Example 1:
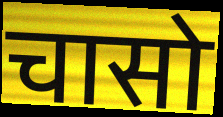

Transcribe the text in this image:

चासो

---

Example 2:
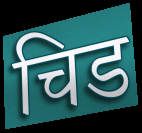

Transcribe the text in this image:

चिड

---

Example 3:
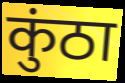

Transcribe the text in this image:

कुंठा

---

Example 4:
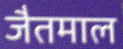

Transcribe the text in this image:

जैतमाल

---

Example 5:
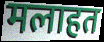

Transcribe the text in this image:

मलाहत